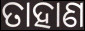
ତାହାଣ